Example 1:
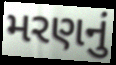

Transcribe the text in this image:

મરણનું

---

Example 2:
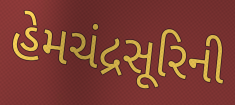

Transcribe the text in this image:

હેમચંદ્રસૂરિની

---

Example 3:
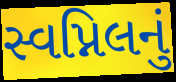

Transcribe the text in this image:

સ્વપ્નિલનું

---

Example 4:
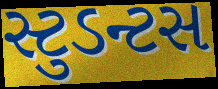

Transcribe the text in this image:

સ્ટુડન્ટસ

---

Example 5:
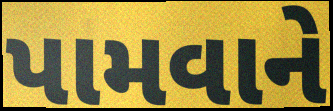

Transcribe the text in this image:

પામવાને